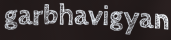
garbhavigyan